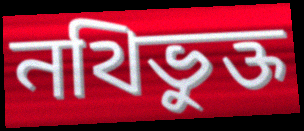
নথিভুক্ত